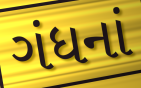
ગંધનાં